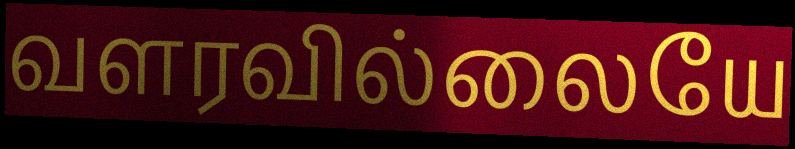
வளரவில்லையே